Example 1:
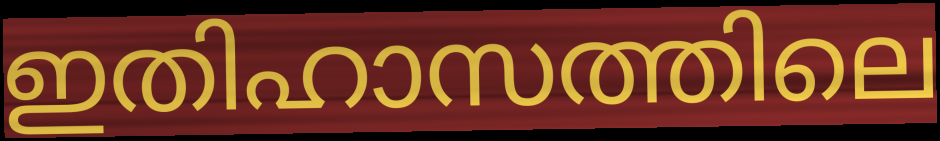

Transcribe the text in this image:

ഇതിഹാസത്തിലെ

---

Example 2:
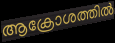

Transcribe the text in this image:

ആക്രോശത്തിൽ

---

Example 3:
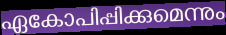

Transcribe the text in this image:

ഏകോപിപ്പിക്കുമെന്നും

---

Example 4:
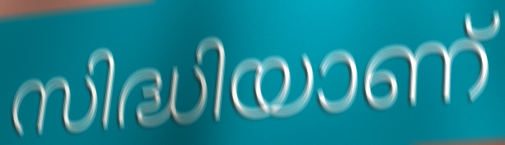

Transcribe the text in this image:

സിദ്ധിയാണ്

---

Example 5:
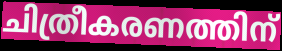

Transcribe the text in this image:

ചിത്രീകരണത്തിന്